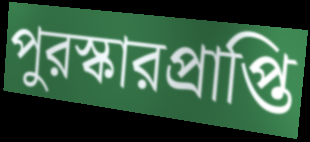
পুরস্কারপ্রাপ্তি